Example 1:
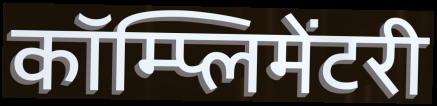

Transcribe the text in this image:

कॉम्प्लिमेंटरी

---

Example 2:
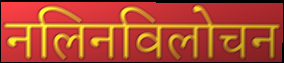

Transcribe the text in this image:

नलिनविलोचन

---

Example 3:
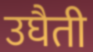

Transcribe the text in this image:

उघैती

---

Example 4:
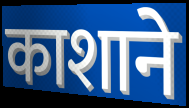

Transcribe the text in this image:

काशाने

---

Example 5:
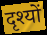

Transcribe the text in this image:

दृश्यों